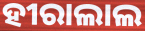
ହୀରାଲାଲ